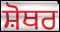
ਸ਼ੋਥਰ